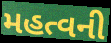
મહત્વની